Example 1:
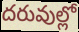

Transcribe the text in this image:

దరువుల్లో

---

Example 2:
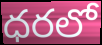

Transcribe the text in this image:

ధరలో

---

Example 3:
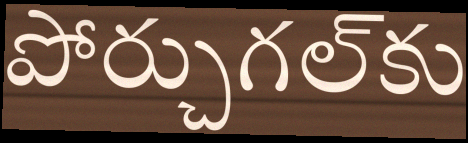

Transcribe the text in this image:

పోర్చుగల్‌కు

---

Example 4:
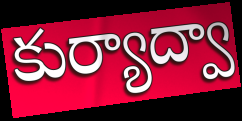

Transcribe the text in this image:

కుర్యాద్వా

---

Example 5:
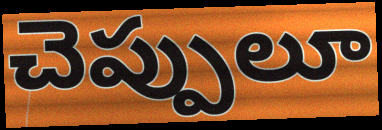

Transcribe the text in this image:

చెప్పులూ